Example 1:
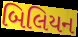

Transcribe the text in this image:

બિલિયન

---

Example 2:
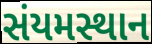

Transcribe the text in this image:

સંયમસ્થાન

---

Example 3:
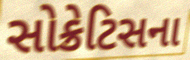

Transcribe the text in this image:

સોક્રેટિસના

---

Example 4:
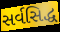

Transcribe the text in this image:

સર્વસિદ્ધ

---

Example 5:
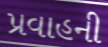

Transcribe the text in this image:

પ્રવાહની